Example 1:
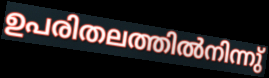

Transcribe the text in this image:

ഉപരിതലത്തിൽനിന്നു്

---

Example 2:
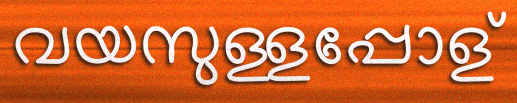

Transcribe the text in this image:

വയസുള്ളപ്പോള്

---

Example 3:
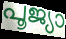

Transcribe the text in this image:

പൂജ്യാ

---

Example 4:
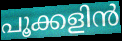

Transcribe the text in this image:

പൂക്കളിൻ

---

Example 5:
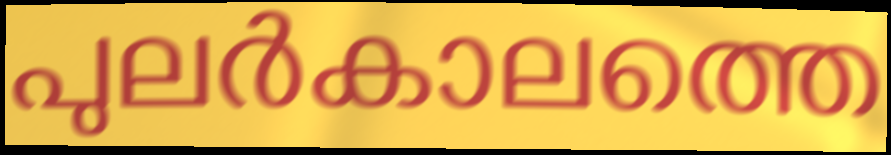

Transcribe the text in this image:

പുലർകാലത്തെ